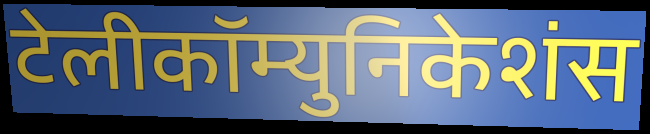
टेलीकॉम्युनिकेशंस